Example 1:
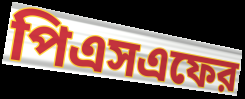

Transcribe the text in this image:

পিএসএফের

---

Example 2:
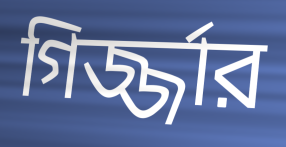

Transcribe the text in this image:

গির্জ্জার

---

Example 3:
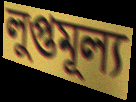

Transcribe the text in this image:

লুপ্তমূল্য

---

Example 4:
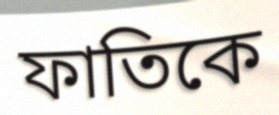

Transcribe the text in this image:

ফাতিকে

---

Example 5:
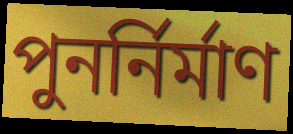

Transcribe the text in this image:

পুনর্নির্মাণ